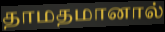
தாமதமானால்